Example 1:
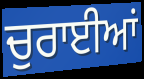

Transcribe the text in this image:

ਚੁਰਾਈਆਂ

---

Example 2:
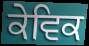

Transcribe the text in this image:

ਕੇਵਿਕ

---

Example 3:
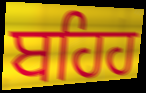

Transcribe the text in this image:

ਬਹਿਹ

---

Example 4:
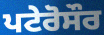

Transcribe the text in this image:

ਪਟੇਰੋਸੌਰ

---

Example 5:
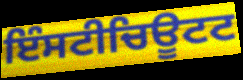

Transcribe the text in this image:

ਇੰਸਟੀਚਿਊਟਟ